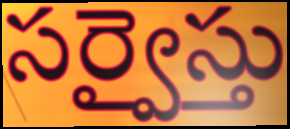
సర్వైస్తు